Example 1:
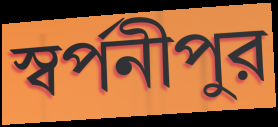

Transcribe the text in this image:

স্বর্পনীপুর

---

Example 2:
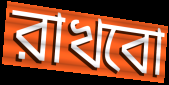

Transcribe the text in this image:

রাখবো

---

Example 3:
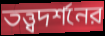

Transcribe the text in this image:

তত্ত্বদর্শনের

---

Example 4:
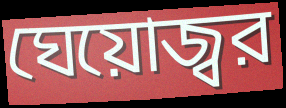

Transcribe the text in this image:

ঘেয়োজ্বর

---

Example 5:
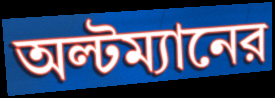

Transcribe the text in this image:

অল্টম্যানের